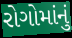
રોગોમાંનું